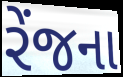
રેંજના